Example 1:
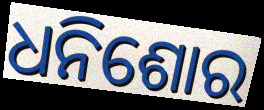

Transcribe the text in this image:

ଧନିଶୋର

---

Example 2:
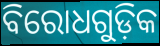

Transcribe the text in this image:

ବିରୋଧଗୁଡ଼ିକ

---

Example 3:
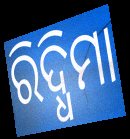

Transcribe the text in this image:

ରିଦ୍ଧିମା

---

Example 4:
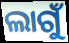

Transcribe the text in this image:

ଲାଗୁଁ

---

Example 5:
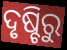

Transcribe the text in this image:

ଦୃଷ୍ଚିରୁ